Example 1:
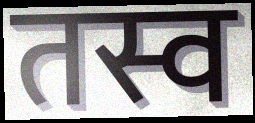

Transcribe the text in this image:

तस्व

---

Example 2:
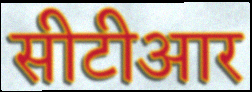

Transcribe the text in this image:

सीटीआर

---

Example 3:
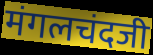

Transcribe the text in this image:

मंगलचंदजी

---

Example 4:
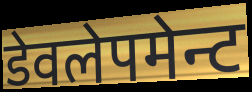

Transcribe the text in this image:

डेवलेपमेन्ट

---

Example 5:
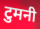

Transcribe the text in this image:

टुमनी